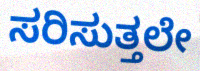
ಸರಿಸುತ್ತಲೇ